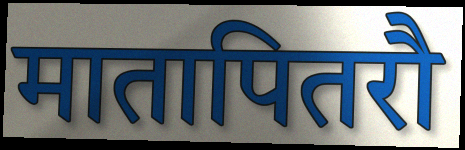
मातापितरौ